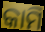
କାମି